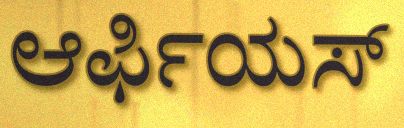
ಆರ್ಫಿಯಸ್